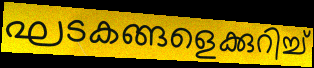
ഘടകങ്ങളെക്കുറിച്ച്